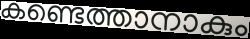
കണ്ടെത്താനാകും